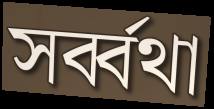
সৰ্ব্বথা